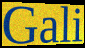
Gali